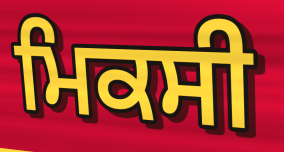
ਮਿਕਸੀ